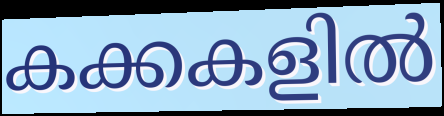
കക്കകളിൽ